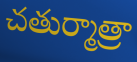
చతుర్మాత్రా